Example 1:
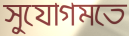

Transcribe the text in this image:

সুযোগমতে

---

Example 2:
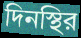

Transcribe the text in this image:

দিনস্থির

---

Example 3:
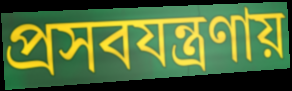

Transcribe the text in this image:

প্রসবযন্ত্রণায়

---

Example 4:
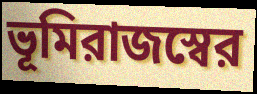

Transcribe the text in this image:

ভূমিরাজস্বের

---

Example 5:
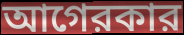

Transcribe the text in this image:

আগেরকার